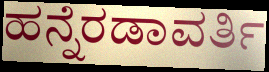
ಹನ್ನೆರಡಾವರ್ತಿ